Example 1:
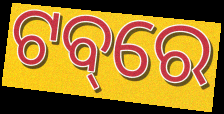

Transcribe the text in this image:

ଟବ୍‌ରେ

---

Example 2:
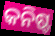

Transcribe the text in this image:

କନିଷ୍ଟ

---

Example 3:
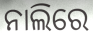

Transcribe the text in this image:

ନାଲିରେ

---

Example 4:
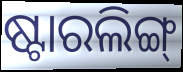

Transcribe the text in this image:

ଷ୍ଟାରଲିଙ୍ଗ୍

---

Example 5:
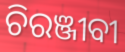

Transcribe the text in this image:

ଚିରଞ୍ଜୀବୀ